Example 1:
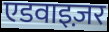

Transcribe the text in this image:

एडवाइज़र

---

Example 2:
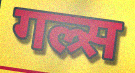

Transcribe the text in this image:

गल्र्स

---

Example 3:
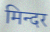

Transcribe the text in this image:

मिन्दर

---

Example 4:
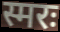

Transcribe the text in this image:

स्मरः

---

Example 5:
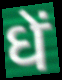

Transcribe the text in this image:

धें